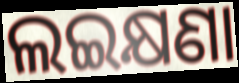
ଲଇକ୍ଷଣା